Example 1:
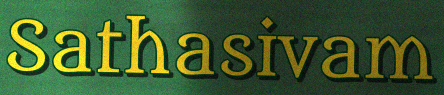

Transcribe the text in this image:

Sathasivam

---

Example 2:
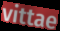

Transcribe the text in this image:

vittae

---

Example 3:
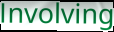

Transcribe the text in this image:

Involving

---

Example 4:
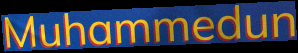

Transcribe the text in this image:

Muhammedun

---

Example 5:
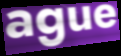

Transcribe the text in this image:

ague